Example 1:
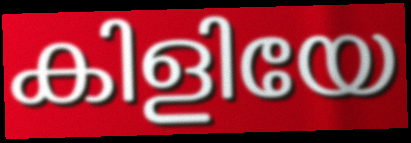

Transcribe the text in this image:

കിളിയേ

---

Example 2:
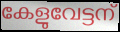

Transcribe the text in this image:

കേളുവേട്ടന്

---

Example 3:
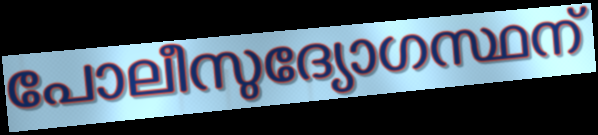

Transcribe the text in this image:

പോലീസുദ്യോഗസ്ഥന്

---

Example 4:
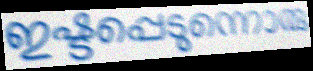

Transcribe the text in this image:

ഇഷ്ടപ്പെടുന്നൊരു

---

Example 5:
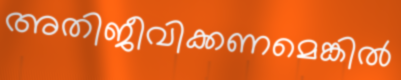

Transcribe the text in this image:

അതിജീവിക്കണമെങ്കിൽ